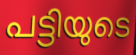
പട്ടിയുടെ